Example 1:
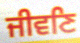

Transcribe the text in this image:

ਜੀਵਣਿ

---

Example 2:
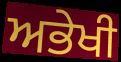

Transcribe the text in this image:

ਅਭੇਖੀ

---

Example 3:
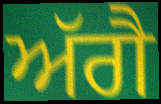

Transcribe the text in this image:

ਅੱਗੈ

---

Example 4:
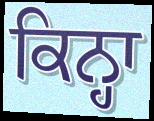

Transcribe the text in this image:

ਕਿਨ੍ਹਾ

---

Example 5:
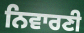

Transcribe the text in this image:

ਨਿਵਾਰਣੀ